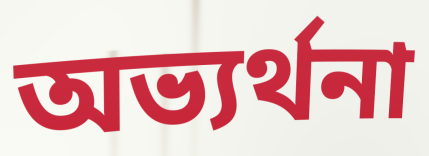
অভ্যর্থনা